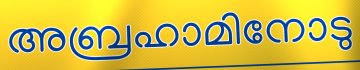
അബ്രഹാമിനോടു